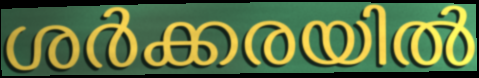
ശർക്കരയിൽ